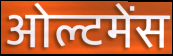
ओल्टमेंस